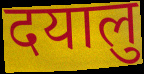
दयालु